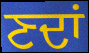
ਣਦਾਂ